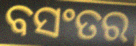
ବସଂତର